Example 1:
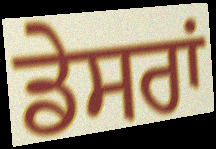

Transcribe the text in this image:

ਡੇਸਰਾਂ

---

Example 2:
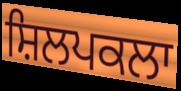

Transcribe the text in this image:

ਸ਼ਿਲਪਕਲਾ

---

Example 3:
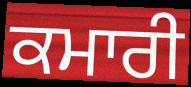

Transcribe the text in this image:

ਕਮਾਰੀ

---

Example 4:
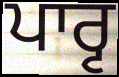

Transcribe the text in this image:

ਪਾਰ੍ਟ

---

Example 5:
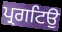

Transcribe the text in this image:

ਪ੍ਰਗਟਿਉ